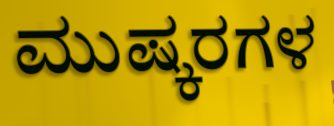
ಮುಷ್ಕರಗಳ